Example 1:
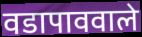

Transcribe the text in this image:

वडापाववाले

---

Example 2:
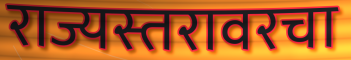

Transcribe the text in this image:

राज्यस्तरावरचा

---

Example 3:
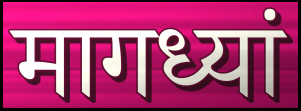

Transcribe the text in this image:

मागध्यां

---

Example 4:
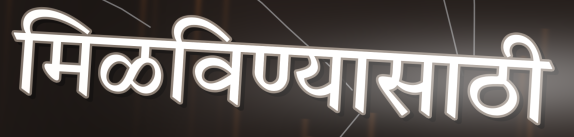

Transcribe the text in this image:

मिळविण्यासाठी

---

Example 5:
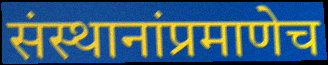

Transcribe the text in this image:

संस्थानांप्रमाणेच